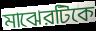
মাঝেরটিকে